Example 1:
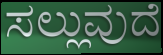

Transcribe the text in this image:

ಸಲ್ಲುವುದೆ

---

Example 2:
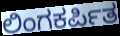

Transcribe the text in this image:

ಲಿಂಗಕರ್ಪಿತ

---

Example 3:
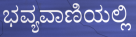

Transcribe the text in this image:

ಭವ್ಯವಾಣಿಯಲ್ಲಿ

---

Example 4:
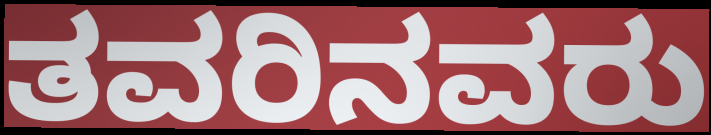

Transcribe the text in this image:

ತವರಿನವರು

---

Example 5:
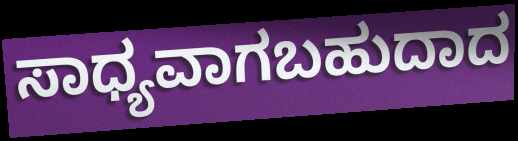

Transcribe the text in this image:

ಸಾಧ್ಯವಾಗಬಹುದಾದ